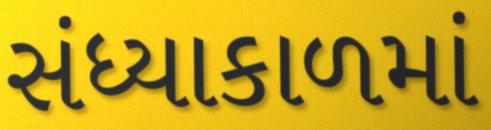
સંધ્યાકાળમાં